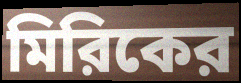
মিরিকের